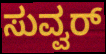
ಸುವ್ವರ್